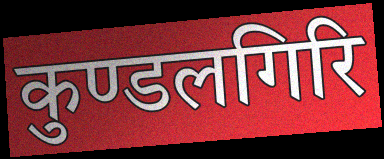
कुण्डलगिरि